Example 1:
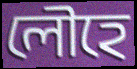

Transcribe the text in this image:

লৌহে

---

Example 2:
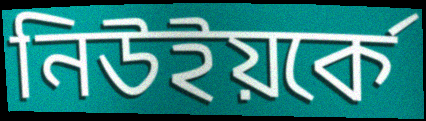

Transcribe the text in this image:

নিউইয়র্কে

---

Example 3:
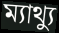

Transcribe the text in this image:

ম্যাথ্যু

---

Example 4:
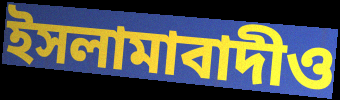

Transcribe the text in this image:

ইসলামাবাদীও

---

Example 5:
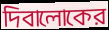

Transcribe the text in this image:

দিবালোকের